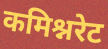
कमिश्नरेट